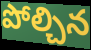
పోల్చిన